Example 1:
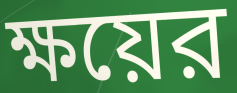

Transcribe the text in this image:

ক্ষয়ের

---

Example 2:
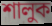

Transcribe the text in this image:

শালুক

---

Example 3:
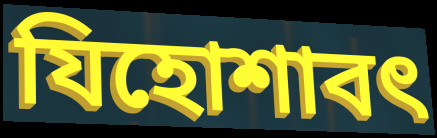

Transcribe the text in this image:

যিহোশাবৎ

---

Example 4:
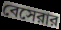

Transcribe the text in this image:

বেসেরার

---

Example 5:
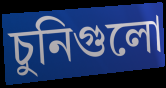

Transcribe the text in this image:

চুনিগুলো